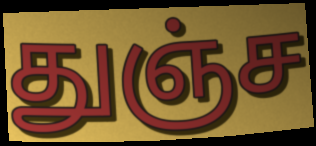
துஞ்ச